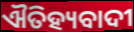
ଐତିହ୍ୟବାଦୀ